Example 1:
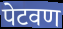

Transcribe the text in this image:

पेटवण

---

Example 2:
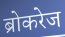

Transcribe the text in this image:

ब्रोकरेज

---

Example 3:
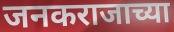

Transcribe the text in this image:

जनकराजाच्या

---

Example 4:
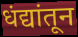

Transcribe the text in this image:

धंद्यांतून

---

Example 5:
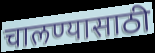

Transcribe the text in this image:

चालण्यासाठी